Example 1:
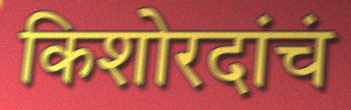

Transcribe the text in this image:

किशोरदांचं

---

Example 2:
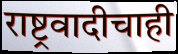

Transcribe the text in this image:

राष्ट्रवादीचाही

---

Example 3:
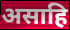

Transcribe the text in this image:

असाहि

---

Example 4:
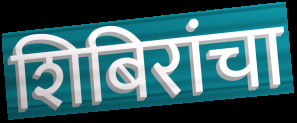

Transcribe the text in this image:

शिबिरांचा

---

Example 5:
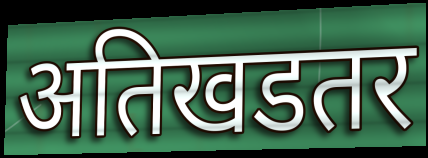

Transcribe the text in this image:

अतिखडतर